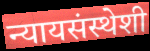
न्यायसंस्थेशी